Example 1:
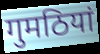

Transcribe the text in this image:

गुमठियां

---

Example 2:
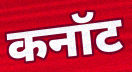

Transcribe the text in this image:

कनॉट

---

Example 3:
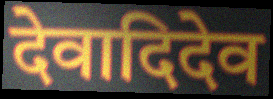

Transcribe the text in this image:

देवादिदेव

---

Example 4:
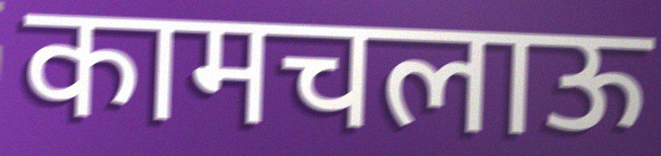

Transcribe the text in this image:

कामचलाऊ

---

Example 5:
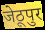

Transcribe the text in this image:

जेठूपुर